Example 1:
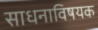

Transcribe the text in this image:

साधनाविषयक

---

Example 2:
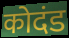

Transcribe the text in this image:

कोदंड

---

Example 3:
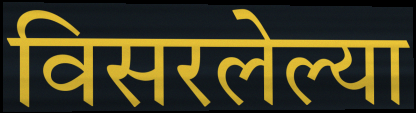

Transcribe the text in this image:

विसरलेल्या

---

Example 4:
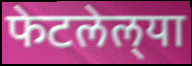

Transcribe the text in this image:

फेटलेल्या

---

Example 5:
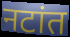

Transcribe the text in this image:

नटांत